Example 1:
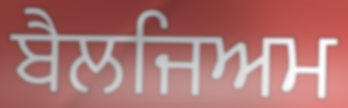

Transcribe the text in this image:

ਬੈਲਜਿਅਮ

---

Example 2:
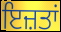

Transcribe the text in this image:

ਇਜ਼ਤਾਂ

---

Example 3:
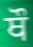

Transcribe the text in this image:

ਥੌ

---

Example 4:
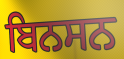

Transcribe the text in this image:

ਬਿਨਸਨ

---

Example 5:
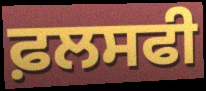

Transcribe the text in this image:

ਫ਼ਲਸਫੀ